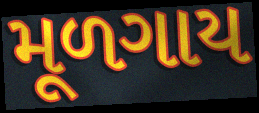
મૂળગાય